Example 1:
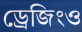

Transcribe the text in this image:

ড্রেজিংও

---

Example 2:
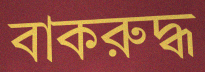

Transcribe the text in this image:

বাকরুদ্ধ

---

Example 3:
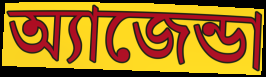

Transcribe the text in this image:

অ্যাজেন্ডা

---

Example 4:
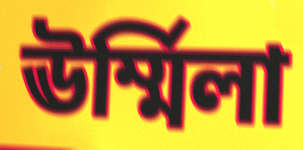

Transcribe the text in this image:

ঊর্ম্মিলা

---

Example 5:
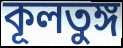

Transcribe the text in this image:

কূলতুঙ্গ